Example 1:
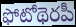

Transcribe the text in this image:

ఫోటోథెరపీ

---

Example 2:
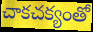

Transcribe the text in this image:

చాకచక్యంతో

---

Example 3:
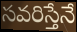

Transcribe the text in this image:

సవరిస్తేనే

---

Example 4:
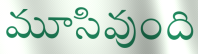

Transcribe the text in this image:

మూసివుంది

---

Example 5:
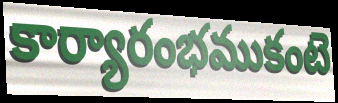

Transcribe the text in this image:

కార్యారంభముకంటె